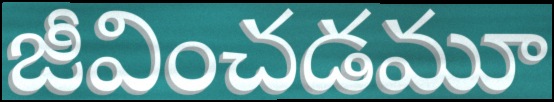
జీవించడమూ